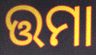
ତ୍ତମା